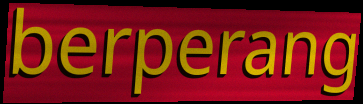
berperang